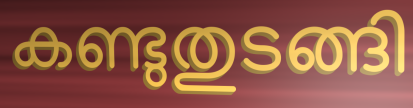
കണ്ടുതുടങ്ങി